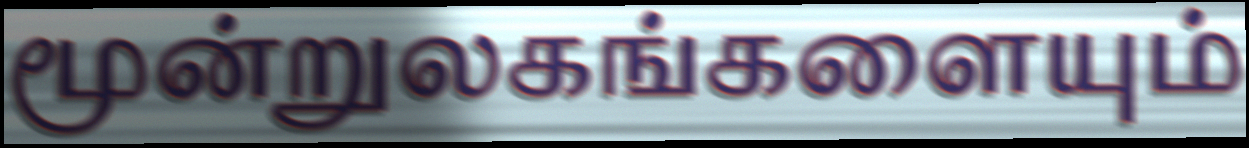
மூன்றுலகங்களையும்